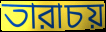
তারাচয়